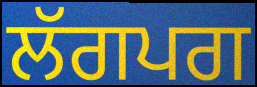
ਲੱਗਪਗ